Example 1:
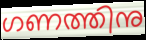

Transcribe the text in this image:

ഗണത്തിനു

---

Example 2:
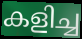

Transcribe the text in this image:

കളിച്ച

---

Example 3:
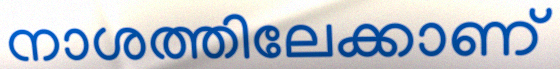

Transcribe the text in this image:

നാശത്തിലേക്കാണ്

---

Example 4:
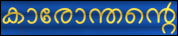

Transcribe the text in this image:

കാരോന്തന്റെ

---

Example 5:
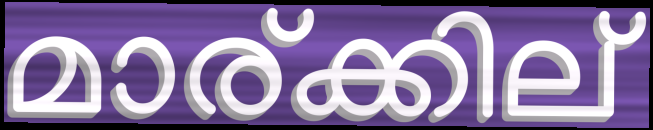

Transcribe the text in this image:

മാര്ക്കില്